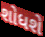
શોધશે